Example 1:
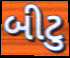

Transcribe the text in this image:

બીટુ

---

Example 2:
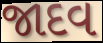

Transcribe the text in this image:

જાદવ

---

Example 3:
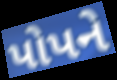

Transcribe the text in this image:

પોપને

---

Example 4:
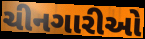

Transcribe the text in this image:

ચીનગારીઓ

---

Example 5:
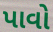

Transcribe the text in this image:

પાવો